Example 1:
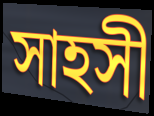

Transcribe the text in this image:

সাহসী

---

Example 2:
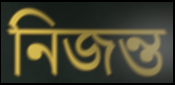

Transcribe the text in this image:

নিজন্ত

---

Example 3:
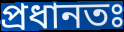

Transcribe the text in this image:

প্ৰধানতঃ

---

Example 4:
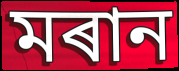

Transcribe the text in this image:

মৰান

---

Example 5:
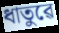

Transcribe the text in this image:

ধাতুৱে